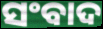
ସଂବାଦ